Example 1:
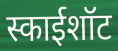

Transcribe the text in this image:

स्काईशॉट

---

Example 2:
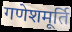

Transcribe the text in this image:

गणेशमूर्ति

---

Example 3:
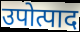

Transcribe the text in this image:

उपोत्पाद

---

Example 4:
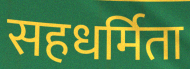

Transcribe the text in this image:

सहधर्मिता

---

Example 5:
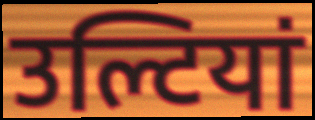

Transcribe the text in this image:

उल्टियां